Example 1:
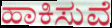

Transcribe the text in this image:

ಹಾಕಿಸುವೆ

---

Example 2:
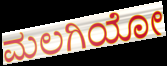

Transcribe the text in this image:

ಮಲಗಿಯೋ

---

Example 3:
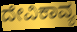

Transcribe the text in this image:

ದೇವಿಕಾವ್ಯ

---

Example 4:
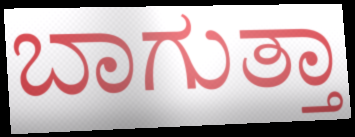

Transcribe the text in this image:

ಬಾಗುತ್ತಾ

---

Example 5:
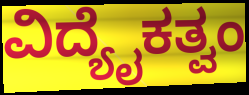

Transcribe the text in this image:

ವಿದ್ಯೈಕತ್ವಂ